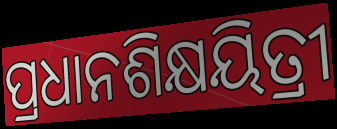
ପ୍ରଧାନଶିକ୍ଷୟିତ୍ରୀ